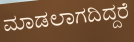
ಮಾಡಲಾಗದಿದ್ದರೆ